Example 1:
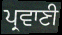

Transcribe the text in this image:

ਪ੍ਰਵਾਣੀ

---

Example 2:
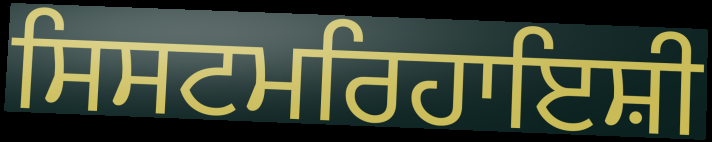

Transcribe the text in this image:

ਸਿਸਟਮਰਿਹਾਇਸ਼ੀ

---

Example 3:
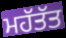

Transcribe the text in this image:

ਮਹੱਤੱਤ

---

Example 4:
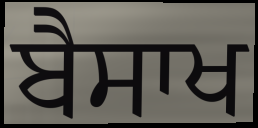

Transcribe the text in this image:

ਬੈਸਾਖ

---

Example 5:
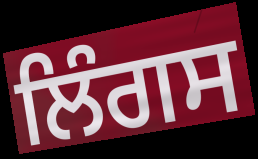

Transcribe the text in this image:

ਲਿੰਗਸ